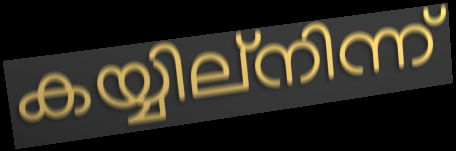
കയ്യില്നിന്ന്